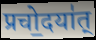
प्रचो॒दया॑त्